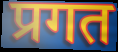
प्रगत